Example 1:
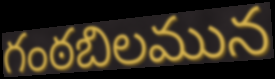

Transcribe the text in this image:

గంఠబిలమున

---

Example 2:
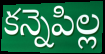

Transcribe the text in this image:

కన్నెపిల్ల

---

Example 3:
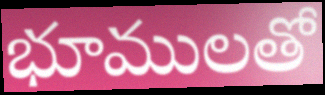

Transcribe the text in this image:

భూములతో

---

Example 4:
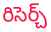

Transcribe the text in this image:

రిసెర్చ్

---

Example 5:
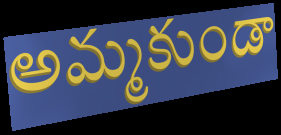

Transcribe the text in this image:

అమ్మకుండా